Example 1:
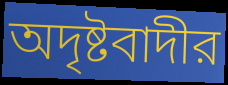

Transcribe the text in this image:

অদৃষ্টবাদীর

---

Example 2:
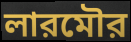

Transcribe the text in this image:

লারমৌর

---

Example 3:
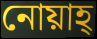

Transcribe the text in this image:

নোয়াহ্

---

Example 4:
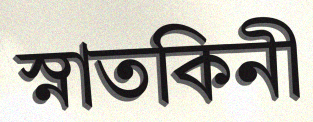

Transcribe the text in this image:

স্নাতকিনী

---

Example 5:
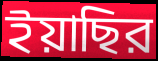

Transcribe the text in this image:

ইয়াছির